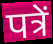
पत्रें